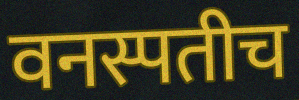
वनस्पतीच